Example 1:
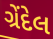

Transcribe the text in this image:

ગ્રેંદેલ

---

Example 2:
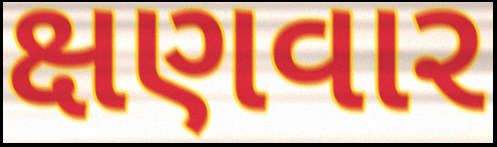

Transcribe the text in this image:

ક્ષણવાર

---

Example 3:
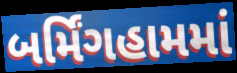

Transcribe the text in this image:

બર્મિંગહામમાં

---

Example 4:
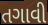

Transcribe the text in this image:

તગાવી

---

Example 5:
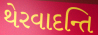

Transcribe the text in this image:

થેરવાદન્તિ